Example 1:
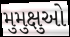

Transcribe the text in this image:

મુમુક્ષુઓ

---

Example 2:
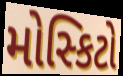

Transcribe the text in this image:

મોસ્કિટો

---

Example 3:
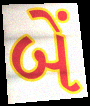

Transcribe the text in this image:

બેં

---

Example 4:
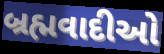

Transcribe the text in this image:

બ્રહ્મવાદીઓ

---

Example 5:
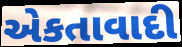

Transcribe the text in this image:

એકતાવાદી